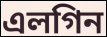
এলগিন